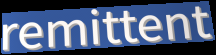
remittent